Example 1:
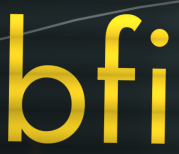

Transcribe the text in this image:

bfi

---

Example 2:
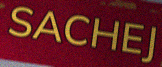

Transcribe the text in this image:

SACHEJ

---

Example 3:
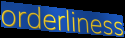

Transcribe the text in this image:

orderliness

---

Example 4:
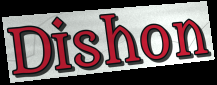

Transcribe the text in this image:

Dishon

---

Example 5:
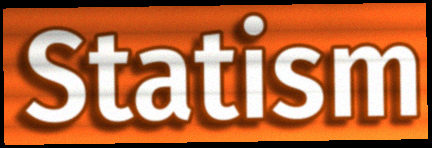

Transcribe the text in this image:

Statism